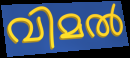
വിമൽ